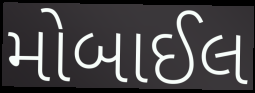
મોબાઈલ